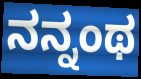
ನನ್ನಂಥ